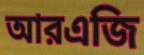
আরএজি